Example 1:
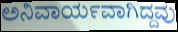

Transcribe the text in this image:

ಅನಿವಾರ್ಯವಾಗಿದ್ದವು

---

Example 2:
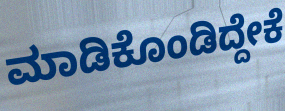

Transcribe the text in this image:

ಮಾಡಿಕೊಂಡಿದ್ದೇಕೆ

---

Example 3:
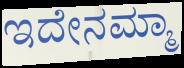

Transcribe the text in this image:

ಇದೇನಮ್ಮಾ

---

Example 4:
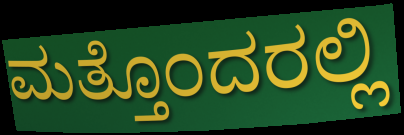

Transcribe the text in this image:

ಮತ್ತೊಂದರಲ್ಲಿ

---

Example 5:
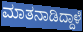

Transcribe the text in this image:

ಮಾತನಾಡಿದ್ದಾಳೆ